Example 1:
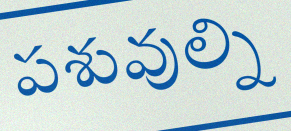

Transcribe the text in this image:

పశువుల్ని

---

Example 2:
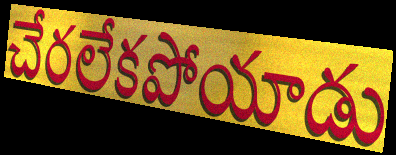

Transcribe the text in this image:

చేరలేకపోయాడు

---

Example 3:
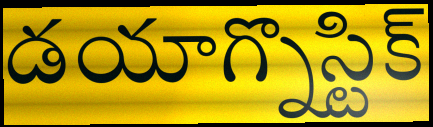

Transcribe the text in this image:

డయాగ్నొస్టిక్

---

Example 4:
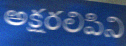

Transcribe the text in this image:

అక్షరలిపిని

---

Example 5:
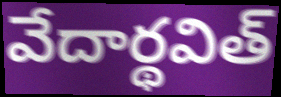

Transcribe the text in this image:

వేదార్థవిత్